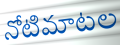
నోటిమాటల